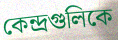
কেন্দ্রগুলিকে